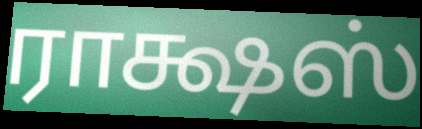
ராக்ஷஸ்